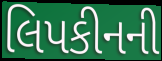
લિપકીનની